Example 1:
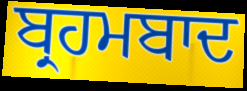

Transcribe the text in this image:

ਬ੍ਰਹਮਬਾਦ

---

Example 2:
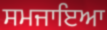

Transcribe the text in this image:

ਸਮਜਾਇਆ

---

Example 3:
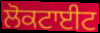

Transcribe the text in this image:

ਲੋਕਟਾਈਟ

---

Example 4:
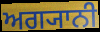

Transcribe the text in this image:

ਅਗ੍ਯਾਨੀ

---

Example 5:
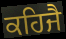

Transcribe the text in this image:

ਕਹਿਜੈ